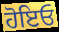
ਹੋਇਓ